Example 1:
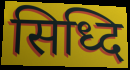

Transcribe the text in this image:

सिध्दि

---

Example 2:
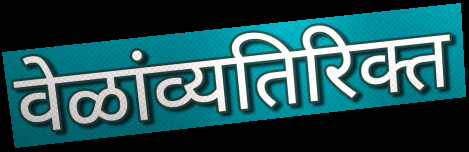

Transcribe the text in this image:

वेळांव्यतिरिक्त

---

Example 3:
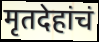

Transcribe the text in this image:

मृतदेहांचं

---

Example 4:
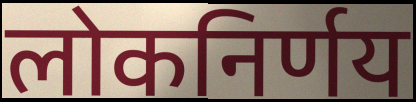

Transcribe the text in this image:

लोकनिर्णय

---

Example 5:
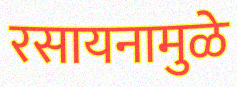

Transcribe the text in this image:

रसायनामुळे